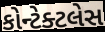
કોન્ટેક્ટલેસ